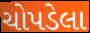
ચોપડેલા